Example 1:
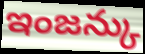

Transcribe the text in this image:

ఇంజన్కు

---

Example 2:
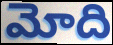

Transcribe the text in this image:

మోది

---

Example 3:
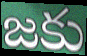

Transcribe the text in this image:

జకు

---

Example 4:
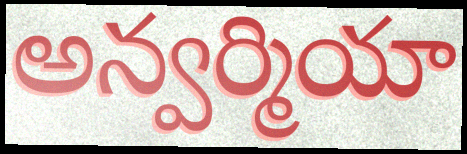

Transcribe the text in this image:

అన్వర్మియా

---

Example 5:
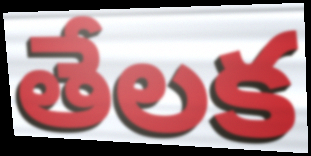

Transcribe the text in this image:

తేలక